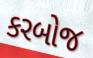
કરબોજ